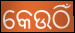
କେଉଠିଁ